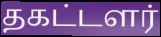
தகட்டளர்